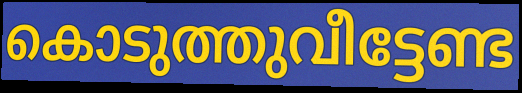
കൊടുത്തുവീട്ടേണ്ട